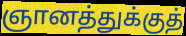
ஞானத்துக்குத்